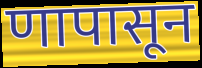
णापासून